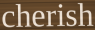
cherish